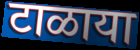
टाळाया